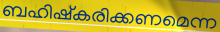
ബഹിഷ്കരിക്കണമെന്ന